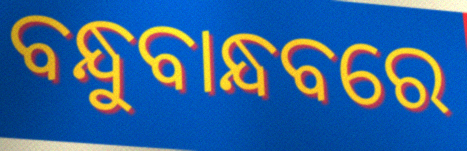
ବନ୍ଧୁବାନ୍ଧବରେ